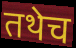
तथेच